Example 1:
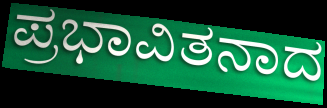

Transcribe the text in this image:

ಪ್ರಭಾವಿತನಾದ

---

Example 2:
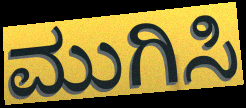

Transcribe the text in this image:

ಮುಗಿಸಿ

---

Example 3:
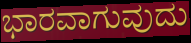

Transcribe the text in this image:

ಭಾರವಾಗುವುದು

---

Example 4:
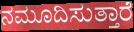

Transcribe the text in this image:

ನಮೂದಿಸುತ್ತಾರೆ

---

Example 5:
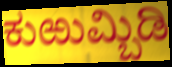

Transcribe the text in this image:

ಕುಱುಮ್ಬಿಡಿ